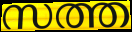
സത്ത